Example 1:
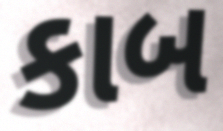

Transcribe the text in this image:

કાબ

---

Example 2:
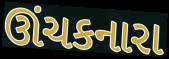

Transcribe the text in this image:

ઊંચકનારા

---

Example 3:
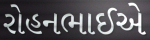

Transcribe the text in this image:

રોહનભાઈએ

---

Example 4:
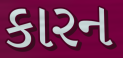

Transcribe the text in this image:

કારન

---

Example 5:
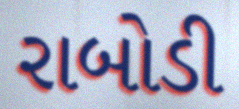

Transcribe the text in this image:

રાબોડી